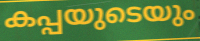
കപ്പയുടെയും